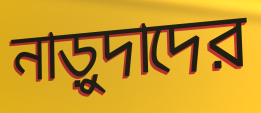
নাড়ুদাদের